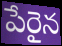
పేరైన